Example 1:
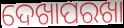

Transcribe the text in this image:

ଦେଖାପରଖା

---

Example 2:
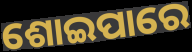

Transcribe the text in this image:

ଶୋଇପାରେ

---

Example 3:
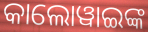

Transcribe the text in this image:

କାଲୋୱାଇଙ୍କ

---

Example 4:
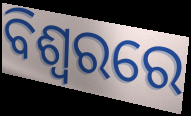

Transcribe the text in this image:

ବିଶ୍ବରରେ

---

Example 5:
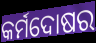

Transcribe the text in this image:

କର୍ମଦୋଷର